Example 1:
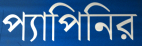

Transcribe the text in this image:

প্যাপিনির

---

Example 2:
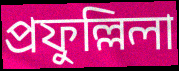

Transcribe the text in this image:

প্রফুল্লিলা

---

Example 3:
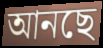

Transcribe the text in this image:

আনছে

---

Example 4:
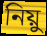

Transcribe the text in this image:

নিয়ু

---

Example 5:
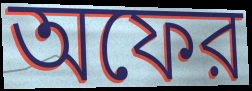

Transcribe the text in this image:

অফের